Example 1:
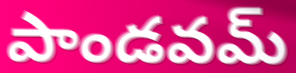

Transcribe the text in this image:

పాండవమ్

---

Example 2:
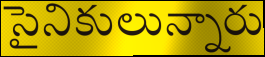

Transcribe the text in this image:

సైనికులున్నారు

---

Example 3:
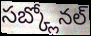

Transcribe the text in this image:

సబ్క్లోనల్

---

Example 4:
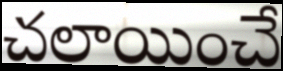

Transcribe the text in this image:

చలాయించే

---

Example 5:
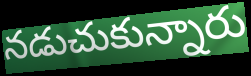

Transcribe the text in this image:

నడుచుకున్నారు